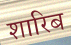
शारिब